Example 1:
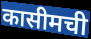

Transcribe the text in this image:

कासीमची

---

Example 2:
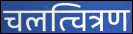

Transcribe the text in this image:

चलत्चित्रण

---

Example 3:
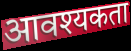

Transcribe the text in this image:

आवश्यकता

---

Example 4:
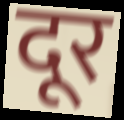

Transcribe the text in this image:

दूर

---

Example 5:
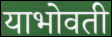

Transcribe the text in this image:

याभोवती